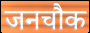
जनचौक